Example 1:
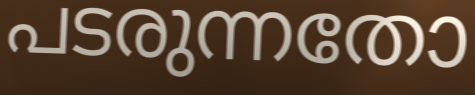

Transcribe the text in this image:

പടരുന്നതോ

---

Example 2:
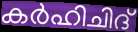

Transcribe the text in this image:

കർഹിചിദ്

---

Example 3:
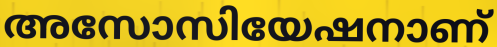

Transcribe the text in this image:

അസോസിയേഷനാണ്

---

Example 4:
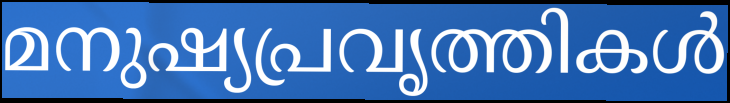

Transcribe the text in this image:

മനുഷ്യപ്രവൃത്തികൾ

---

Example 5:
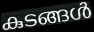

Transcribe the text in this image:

കുടങ്ങൾ